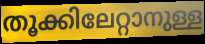
തൂക്കിലേറ്റാനുള്ള